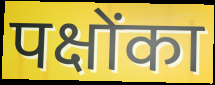
पक्षोंका